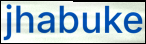
jhabuke